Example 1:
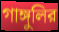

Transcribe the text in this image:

গাঙ্গুলির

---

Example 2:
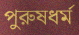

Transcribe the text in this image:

পুরুষধর্ম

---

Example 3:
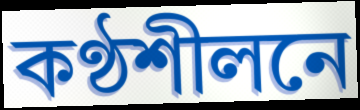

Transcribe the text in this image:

কণ্ঠশীলনে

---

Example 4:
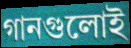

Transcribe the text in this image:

গানগুলোই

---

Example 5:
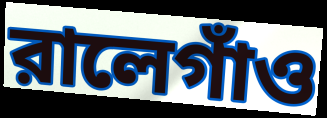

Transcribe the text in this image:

রালেগাঁও